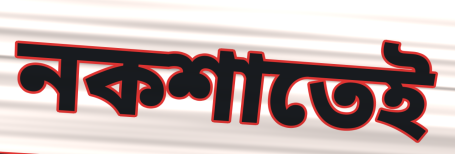
নকশাতেই